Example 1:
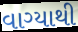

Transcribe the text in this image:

વાગ્યાથી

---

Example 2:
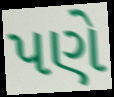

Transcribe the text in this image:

પણે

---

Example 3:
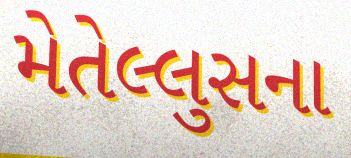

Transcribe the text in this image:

મેતેલ્લુસના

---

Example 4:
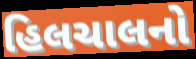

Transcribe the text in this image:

હિલચાલનો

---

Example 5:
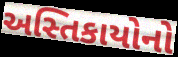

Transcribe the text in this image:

અસ્તિકાયોનો